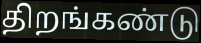
திறங்கண்டு